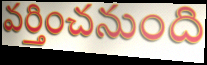
వర్తించనుంది